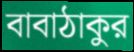
বাবাঠাকুর